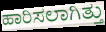
ಹಾರಿಸಲಾಗಿತ್ತು